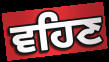
ਵਹਿਣ